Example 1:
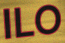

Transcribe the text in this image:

ILO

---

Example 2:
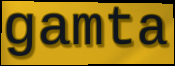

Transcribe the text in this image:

gamta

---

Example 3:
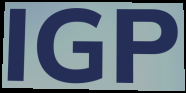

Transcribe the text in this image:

IGP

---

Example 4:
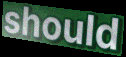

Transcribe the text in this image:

should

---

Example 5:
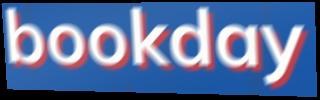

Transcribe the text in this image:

bookday